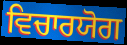
ਵਿਚਾਰਯੋਗ